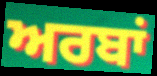
ਅਰਬਾਂ